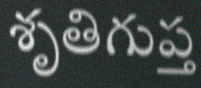
శృతిగుప్త